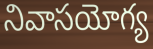
నివాసయోగ్య